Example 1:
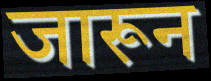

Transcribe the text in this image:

जारून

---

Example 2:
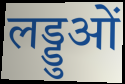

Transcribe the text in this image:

लड्डुओं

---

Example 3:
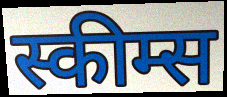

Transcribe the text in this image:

स्कीम्स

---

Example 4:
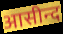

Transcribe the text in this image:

आसीन्द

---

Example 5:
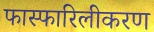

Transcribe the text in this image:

फास्फारिलीकरण